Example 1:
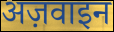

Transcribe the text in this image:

अज़वाइन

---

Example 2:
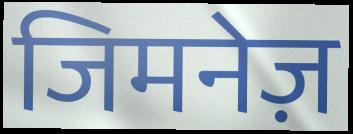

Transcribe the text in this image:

जिमनेज़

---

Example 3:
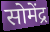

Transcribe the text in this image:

सोमेंद्र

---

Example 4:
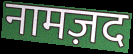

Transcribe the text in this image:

नामज़द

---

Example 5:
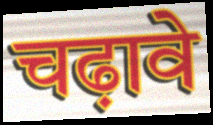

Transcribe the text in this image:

चढ़ावे